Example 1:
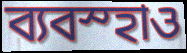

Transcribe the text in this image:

ব্যবস্হাও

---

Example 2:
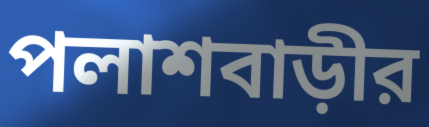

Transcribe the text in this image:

পলাশবাড়ীর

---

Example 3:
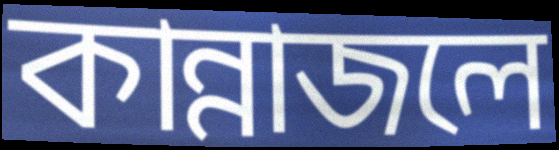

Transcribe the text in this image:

কান্নাজলে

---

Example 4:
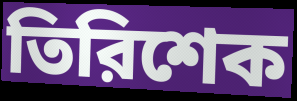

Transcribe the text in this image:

তিরিশেক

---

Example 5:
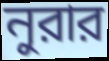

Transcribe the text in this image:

নুরার